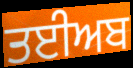
ਤਈਅਬ